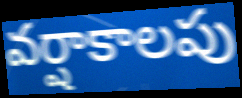
వర్షాకాలపు